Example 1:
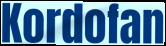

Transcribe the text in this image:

Kordofan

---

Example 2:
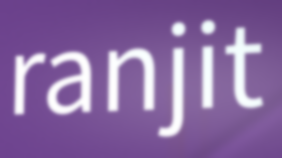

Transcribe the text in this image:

ranjit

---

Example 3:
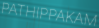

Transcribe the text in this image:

PATHIPPAKAM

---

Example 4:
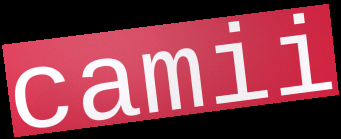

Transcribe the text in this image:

camii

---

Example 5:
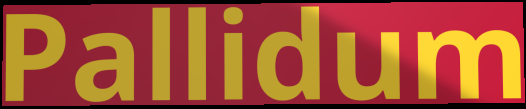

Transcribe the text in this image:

Pallidum